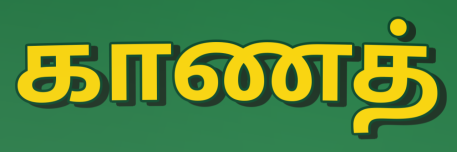
காணத்